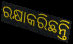
ରକ୍ଷାକରିଛନ୍ତି